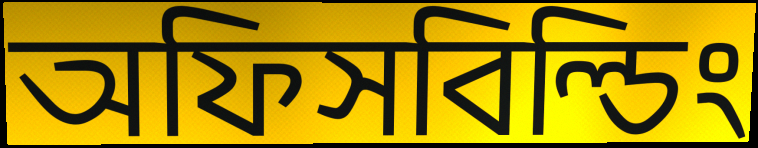
অফিসবিল্ডিং